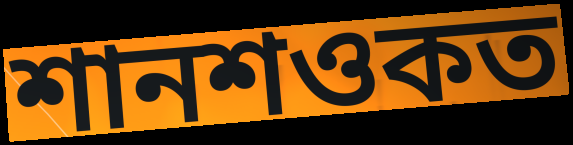
শানশওকত